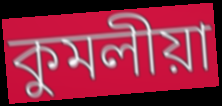
কুমলীয়া